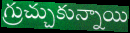
గ్రుచ్చుకున్నాయి